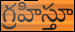
గ్రహిస్తూ